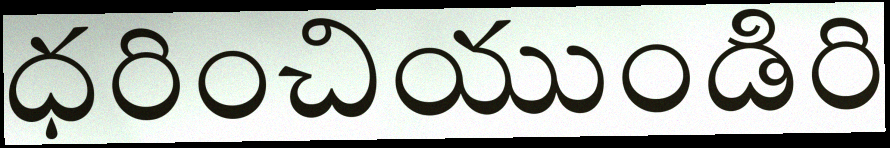
ధరించియుండిరి